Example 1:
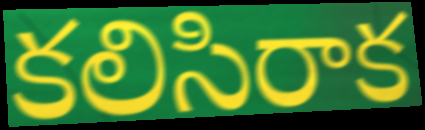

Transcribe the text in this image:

కలిసిరాక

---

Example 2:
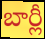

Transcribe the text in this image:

బార్లీ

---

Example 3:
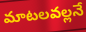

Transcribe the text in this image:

మాటలవల్లనే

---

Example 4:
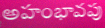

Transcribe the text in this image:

అహంభావపు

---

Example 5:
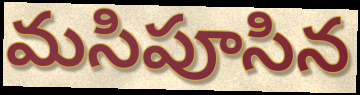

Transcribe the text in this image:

మసిపూసిన